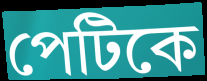
পেটিকে